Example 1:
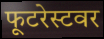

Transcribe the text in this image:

फूटरेस्टवर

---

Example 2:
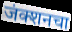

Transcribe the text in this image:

जंक्‍शनचा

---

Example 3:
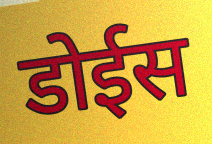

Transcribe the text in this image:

डोईस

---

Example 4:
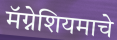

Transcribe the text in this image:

मॅग्नेशियमाचे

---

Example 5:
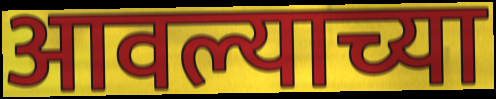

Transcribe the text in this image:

आवल्याच्या